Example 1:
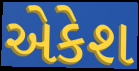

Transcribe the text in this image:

એકેશ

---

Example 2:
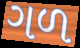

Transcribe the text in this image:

ગળ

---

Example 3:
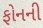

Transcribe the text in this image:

ફોનની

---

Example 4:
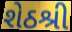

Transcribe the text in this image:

શેઠશ્રી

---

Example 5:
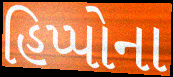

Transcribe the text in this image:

હિપ્પોના